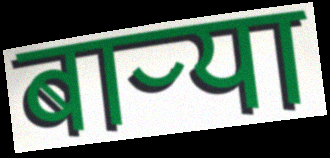
बाऱ्या